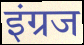
इंग्रज